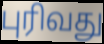
புரிவது